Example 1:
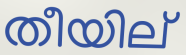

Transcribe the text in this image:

തീയില്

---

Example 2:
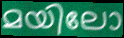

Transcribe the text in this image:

മയിലോ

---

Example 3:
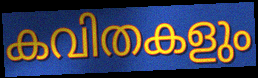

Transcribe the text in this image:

കവിതകളും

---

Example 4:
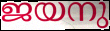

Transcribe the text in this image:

ജയനു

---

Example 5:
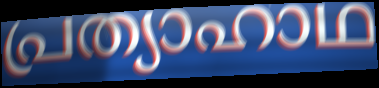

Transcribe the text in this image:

പ്രത്യാഹാഥ